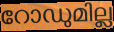
റോഡുമില്ല